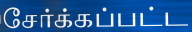
சேர்க்கப்பட்ட